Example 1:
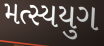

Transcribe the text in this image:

મત્સ્યયુગ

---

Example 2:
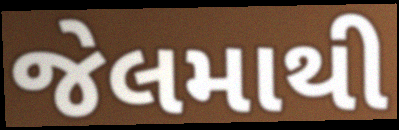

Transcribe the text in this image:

જેલમાથી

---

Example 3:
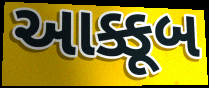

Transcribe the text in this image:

આક્કૂબ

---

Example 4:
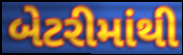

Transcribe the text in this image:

બેટરીમાંથી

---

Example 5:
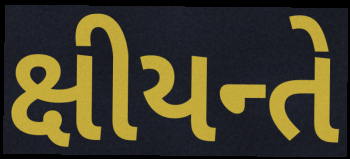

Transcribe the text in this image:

ક્ષીયન્તે